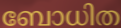
ബോധിത